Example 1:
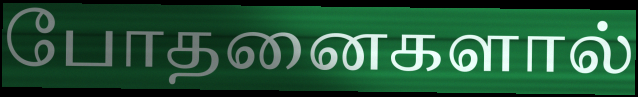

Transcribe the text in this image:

போதனைகளால்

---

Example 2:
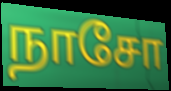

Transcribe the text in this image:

நாசோ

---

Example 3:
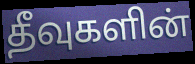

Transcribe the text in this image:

தீவுகளின்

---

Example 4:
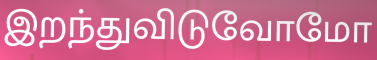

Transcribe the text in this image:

இறந்துவிடுவோமோ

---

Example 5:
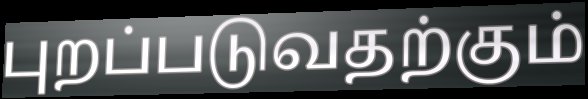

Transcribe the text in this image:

புறப்படுவதற்கும்